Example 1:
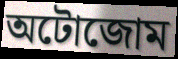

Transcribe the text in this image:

অটোজোম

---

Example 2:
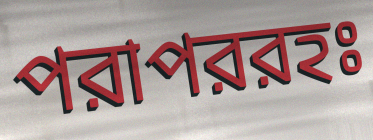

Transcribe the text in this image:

পরাপররহঃ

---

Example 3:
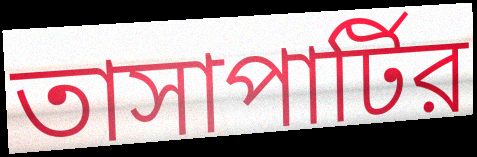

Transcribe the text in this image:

তাসাপার্টির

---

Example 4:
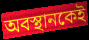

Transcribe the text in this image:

অবস্থানকেই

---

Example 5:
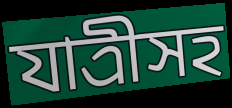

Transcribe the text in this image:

যাত্রীসহ